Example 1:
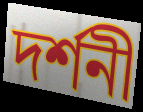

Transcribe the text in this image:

দৰ্শনী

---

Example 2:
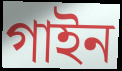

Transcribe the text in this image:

গাইন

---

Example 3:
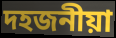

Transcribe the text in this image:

দহজনীয়া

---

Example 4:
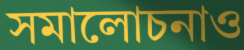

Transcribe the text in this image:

সমালোচনাও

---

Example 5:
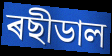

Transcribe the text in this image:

ৰছীডাল